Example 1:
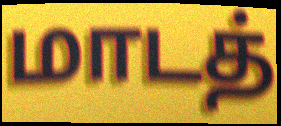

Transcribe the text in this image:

மாடத்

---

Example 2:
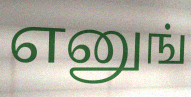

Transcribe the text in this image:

எனுங்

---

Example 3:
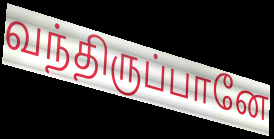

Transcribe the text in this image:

வந்திருப்பானே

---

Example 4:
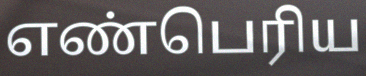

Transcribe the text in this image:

எண்பெரிய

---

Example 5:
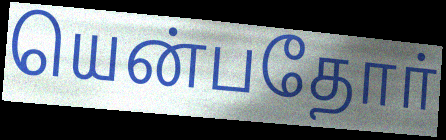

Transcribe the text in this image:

யென்பதோர்